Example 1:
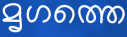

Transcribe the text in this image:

മൃഗത്തെ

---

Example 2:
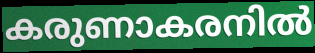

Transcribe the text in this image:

കരുണാകരനിൽ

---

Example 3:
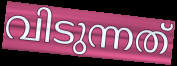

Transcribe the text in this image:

വിടുന്നത്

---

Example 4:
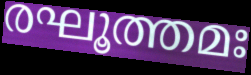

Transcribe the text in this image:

രഘൂത്തമഃ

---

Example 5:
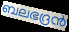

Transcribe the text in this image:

ബലഭദ്രൻ